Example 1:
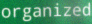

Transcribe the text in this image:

organized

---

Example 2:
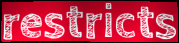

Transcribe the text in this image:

restricts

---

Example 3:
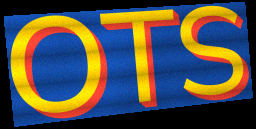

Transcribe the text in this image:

OTS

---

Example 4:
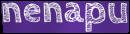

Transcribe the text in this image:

nenapu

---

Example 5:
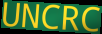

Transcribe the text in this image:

UNCRC